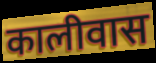
कालीवास